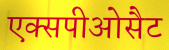
एक्सपीओसैट